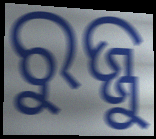
ରୁଜ୍ଜୁ